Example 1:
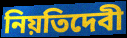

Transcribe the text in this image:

নিয়তিদেবী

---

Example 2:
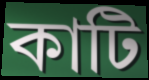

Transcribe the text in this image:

কাটি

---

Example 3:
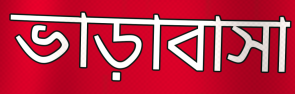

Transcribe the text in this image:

ভাড়াবাসা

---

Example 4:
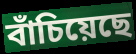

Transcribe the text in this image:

বাঁচিয়েছে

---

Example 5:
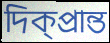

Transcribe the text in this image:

দিক্‌প্রান্ত